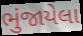
ભુંજાયેલા